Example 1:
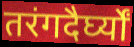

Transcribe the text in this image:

तरंगदैर्घ्यों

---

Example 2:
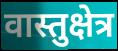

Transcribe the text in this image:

वास्तुक्षेत्र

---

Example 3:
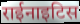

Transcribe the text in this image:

राईनाइटिस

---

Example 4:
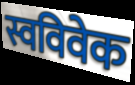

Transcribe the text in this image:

स्वविवेक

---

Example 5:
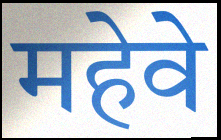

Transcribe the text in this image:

महेवे